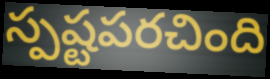
స్పష్టపరచింది